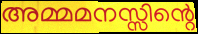
അമ്മമനസ്സിന്റെ